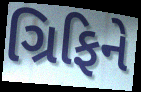
ગ્રિફિને